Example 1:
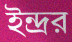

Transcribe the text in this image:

ইন্দ্রর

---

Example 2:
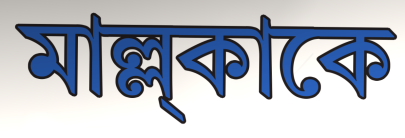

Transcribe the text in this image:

মাল্ল্কাকে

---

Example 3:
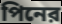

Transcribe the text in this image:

পিনের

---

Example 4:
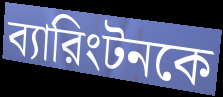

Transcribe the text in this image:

ব্যারিংটনকে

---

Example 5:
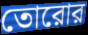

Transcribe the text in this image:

তোরোর